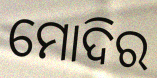
ମୋଦିର